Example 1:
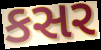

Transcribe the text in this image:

કસર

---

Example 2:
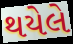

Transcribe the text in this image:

થયેલે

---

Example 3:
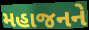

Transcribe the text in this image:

મહાજનને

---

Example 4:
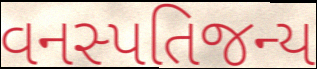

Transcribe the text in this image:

વનસ્પતિજન્ય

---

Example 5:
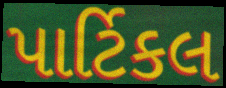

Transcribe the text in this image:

પાર્ટિકલ